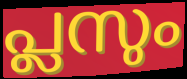
പ്ലസും